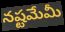
నష్టమేమీ